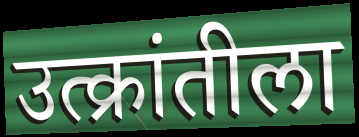
उत्क्रांतीला